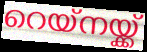
റെയ്നയ്ക്ക്